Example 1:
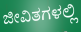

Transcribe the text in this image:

ಜೀವಿತಗಳಲ್ಲಿ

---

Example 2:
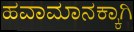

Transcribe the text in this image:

ಹವಾಮಾನಕ್ಕಾಗಿ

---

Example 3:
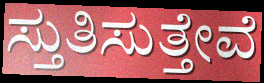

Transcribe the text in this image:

ಸ್ತುತಿಸುತ್ತೇವೆ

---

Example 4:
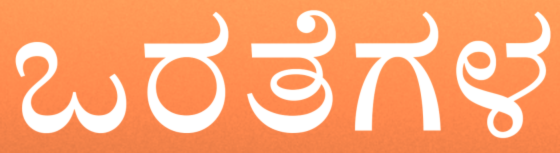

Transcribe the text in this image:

ಒರತೆಗಳ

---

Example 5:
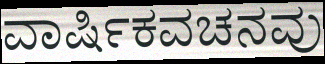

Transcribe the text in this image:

ವಾರ್ಷಿಕವಚನವು